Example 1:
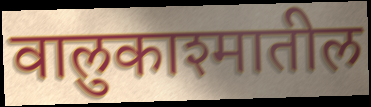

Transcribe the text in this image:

वालुकाश्मातील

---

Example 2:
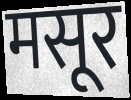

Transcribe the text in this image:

मसूर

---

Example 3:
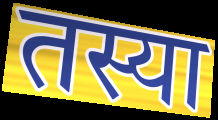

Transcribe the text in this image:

तस्या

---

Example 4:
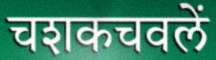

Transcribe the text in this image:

चशकचवलें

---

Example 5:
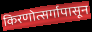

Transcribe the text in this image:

किरणोत्सर्गापासून